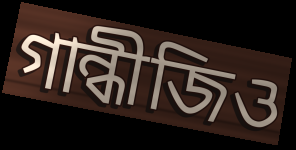
গান্ধীজিও